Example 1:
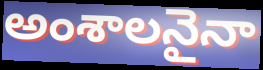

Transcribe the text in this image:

అంశాలనైనా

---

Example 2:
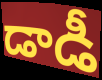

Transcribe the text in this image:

డాడీ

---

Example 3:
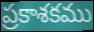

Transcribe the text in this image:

ప్రకాశకము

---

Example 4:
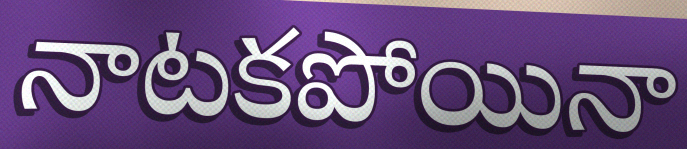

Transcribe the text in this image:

నాటకపోయినా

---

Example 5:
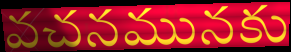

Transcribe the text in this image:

వచనమునకు